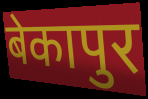
बेकापुर